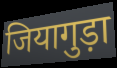
जियागुड़ा